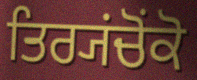
ਤਿਰ੍ਯਂਚੋਂਕੋ